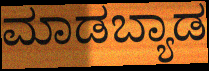
ಮಾಡಬ್ಯಾಡ